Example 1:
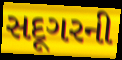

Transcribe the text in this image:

સદૂગરની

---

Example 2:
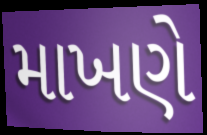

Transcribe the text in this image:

માખણે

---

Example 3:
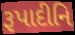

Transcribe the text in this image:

રૂપાદીનિ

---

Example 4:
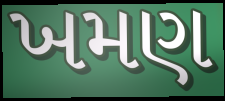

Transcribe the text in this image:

ખમણ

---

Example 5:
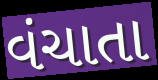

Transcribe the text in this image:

વંચાતા